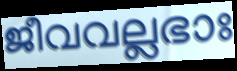
ജീവവല്ലഭാഃ